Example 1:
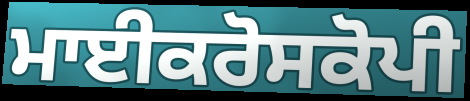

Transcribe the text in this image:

ਮਾਈਕਰੋਸਕੋਪੀ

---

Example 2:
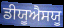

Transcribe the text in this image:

ਡੀਯੂਐਸਯੂ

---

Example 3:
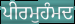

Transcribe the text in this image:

ਪੀਰਮੁਹੰਮਦ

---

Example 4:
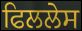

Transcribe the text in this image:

ਫਿਲਲੇਸ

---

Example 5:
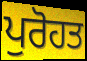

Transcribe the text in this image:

ਪੁਰੋਹਤ